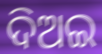
ଦିଅଇ